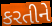
કરતીને